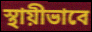
স্থায়ীভাবে